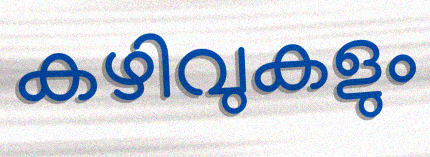
കഴിവുകളും